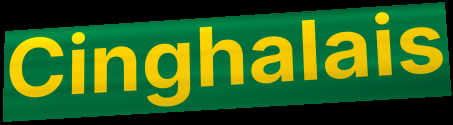
Cinghalais